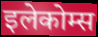
इलेकोम्स